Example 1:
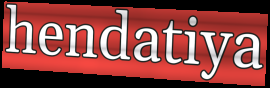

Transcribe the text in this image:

hendatiya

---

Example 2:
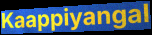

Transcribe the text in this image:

Kaappiyangal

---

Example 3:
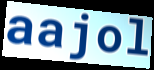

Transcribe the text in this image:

aajol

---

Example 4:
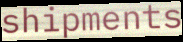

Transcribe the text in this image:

shipments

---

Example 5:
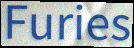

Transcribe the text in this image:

Furies